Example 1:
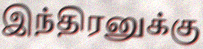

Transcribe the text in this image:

இந்திரனுக்கு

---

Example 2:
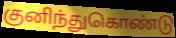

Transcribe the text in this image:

குனிந்துகொண்டு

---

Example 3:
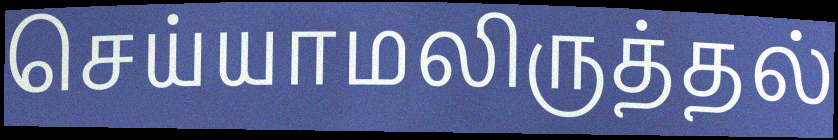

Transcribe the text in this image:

செய்யாமலிருத்தல்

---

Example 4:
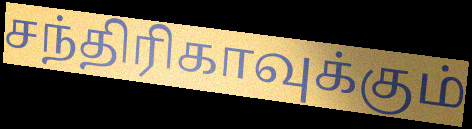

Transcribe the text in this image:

சந்திரிகாவுக்கும்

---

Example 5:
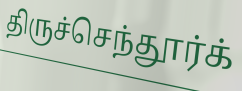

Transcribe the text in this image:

திருச்செந்தூர்க்